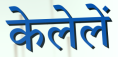
केलेलें